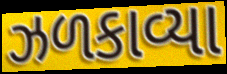
ઝળકાવ્યા